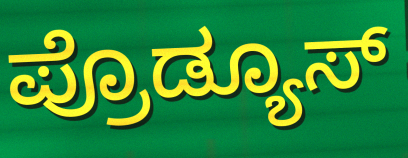
ಪ್ರೊಡ್ಯೂಸ್